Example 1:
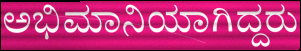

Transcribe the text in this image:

ಅಭಿಮಾನಿಯಾಗಿದ್ದರು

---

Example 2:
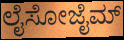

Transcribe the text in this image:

ಲೈಸೋಜೈಮ್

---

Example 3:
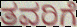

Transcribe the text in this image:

ತವರಿಗೆ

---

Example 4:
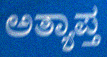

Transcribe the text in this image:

ಅತ್ಯಾಪ್ತ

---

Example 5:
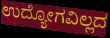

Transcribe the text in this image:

ಉದ್ಯೋಗವಿಲ್ಲದ